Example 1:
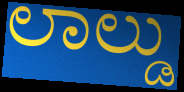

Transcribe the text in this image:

ಲಾಲ್ಡು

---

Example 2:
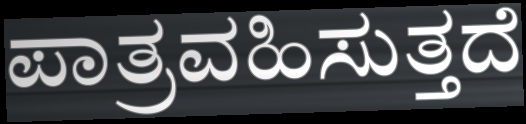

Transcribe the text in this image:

ಪಾತ್ರವಹಿಸುತ್ತದೆ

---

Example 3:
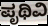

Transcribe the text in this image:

ಪೃಥಿವಿ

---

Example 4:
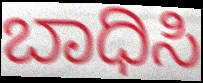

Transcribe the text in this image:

ಬಾಧಿಸಿ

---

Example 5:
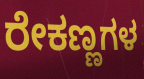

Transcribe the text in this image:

ರೇಕಣ್ಣಗಳ